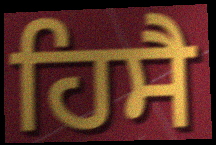
ਹਿਸੈ